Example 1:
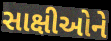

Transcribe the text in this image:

સાક્ષીઓને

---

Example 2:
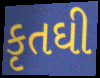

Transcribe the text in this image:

કૃતઘી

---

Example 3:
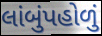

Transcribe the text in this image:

લાંબુંપહોળું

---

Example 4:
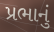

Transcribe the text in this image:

પ્રભાનું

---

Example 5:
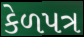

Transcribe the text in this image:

કેળપત્ર